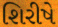
શિરીષે